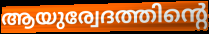
ആയുര്വേദത്തിന്റെ